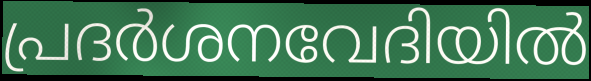
പ്രദർശനവേദിയിൽ